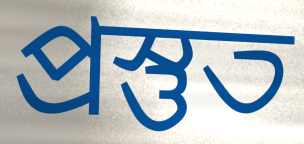
প্রস্তুত